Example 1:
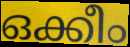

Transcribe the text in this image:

ഒക്കീം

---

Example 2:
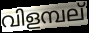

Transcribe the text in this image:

വിളമ്പല്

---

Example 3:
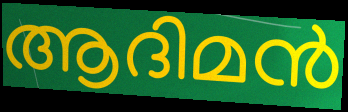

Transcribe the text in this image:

ആദിമൻ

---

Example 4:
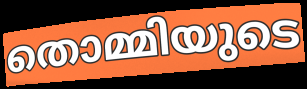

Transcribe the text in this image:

തൊമ്മിയുടെ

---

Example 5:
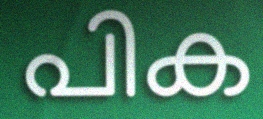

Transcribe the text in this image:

പിക